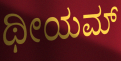
ಥೀಯಮ್